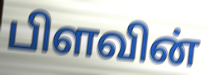
பிளவின்